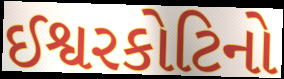
ઈશ્વરકોટિનો